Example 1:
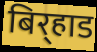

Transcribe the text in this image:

बिर्‍हाड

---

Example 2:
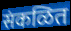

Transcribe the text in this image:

संकळित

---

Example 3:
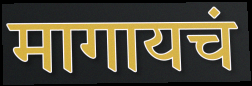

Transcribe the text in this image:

मागायचं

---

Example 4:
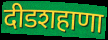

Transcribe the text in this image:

दीडशहाणा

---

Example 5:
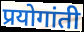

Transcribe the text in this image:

प्रयोगांती